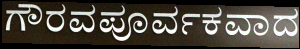
ಗೌರವಪೂರ್ವಕವಾದ